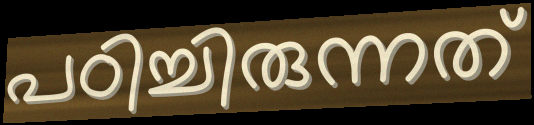
പഠിച്ചിരുന്നത്